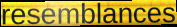
resemblances